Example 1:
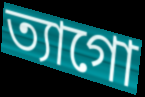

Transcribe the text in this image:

ত্যাগো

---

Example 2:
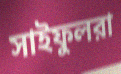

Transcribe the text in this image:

সাইফুলরা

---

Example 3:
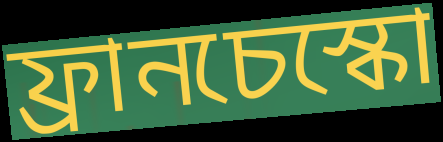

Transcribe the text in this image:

ফ্রানচেস্কো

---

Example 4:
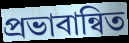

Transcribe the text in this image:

প্রভাবান্বিত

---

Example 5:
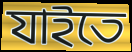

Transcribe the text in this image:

যাইতে